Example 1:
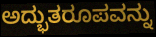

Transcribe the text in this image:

ಅದ್ಭುತರೂಪವನ್ನು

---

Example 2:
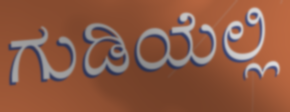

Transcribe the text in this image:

ಗುಡಿಯೆಲ್ಲಿ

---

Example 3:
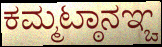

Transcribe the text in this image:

ಕಮ್ಮಟ್ಠಾನಞ್ಚ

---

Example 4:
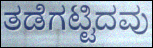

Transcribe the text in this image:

ತಡೆಗಟ್ಟಿದವು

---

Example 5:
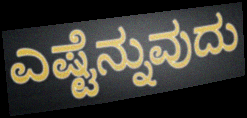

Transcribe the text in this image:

ಎಷ್ಟೆನ್ನುವುದು